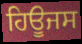
ਹਿਊਜਸ